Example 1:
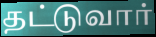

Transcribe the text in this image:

தட்டுவார்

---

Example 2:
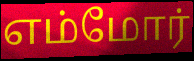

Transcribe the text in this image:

எம்மோர்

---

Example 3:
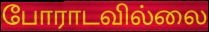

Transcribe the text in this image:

போராடவில்லை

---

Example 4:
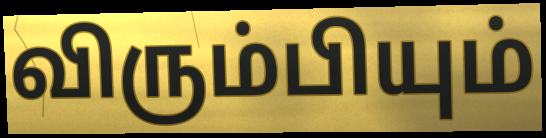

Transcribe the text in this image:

விரும்பியும்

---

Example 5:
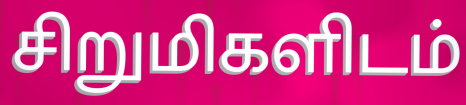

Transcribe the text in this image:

சிறுமிகளிடம்